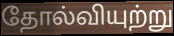
தோல்வியுற்று